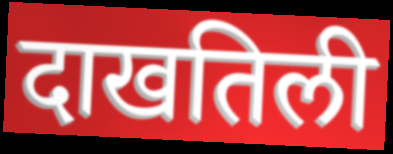
दाखतिली